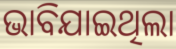
ଭାବିଯାଇଥିଲା